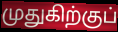
முதுகிற்குப்